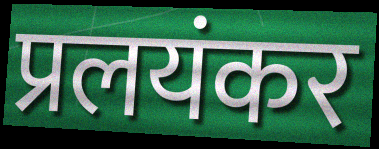
प्रलयंकर